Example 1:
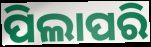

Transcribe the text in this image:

ପିଲାପରି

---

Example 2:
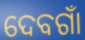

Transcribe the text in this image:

ଦେବଗାଁ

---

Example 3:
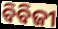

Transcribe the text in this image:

ବିବିଜୀ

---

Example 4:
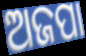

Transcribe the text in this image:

ଅଜପା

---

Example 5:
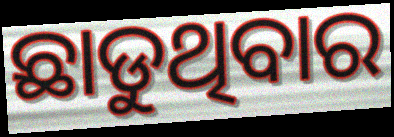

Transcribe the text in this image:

ଛାଡୁଥିବାର